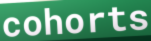
cohorts